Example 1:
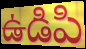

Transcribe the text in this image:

ఉడిపి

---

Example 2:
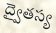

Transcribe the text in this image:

ద్వైతస్య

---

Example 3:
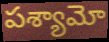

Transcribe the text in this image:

పశ్యామో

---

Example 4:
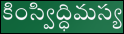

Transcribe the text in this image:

కింస్విద్ధిమస్య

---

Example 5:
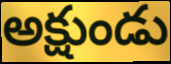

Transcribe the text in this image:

అక్షుండు